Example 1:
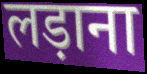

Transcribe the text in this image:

लड़ाना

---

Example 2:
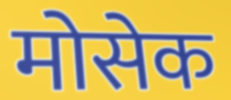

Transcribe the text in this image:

मोसेक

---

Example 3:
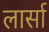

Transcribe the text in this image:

लार्सा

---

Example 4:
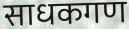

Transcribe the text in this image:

साधकगण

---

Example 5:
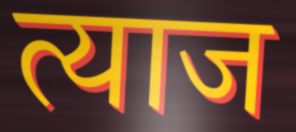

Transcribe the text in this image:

त्याज